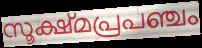
സൂക്ഷ്മപ്രപഞ്ചം